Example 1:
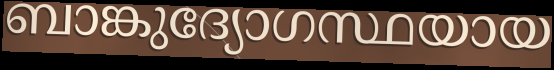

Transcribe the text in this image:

ബാങ്കുദ്യോഗസ്ഥയായ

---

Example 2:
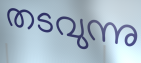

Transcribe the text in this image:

തടവുന്നു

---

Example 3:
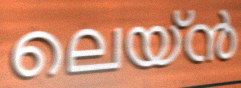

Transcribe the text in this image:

ലെയ്ൻ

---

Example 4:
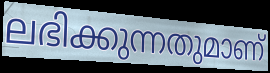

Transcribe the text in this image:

ലഭിക്കുന്നതുമാണ്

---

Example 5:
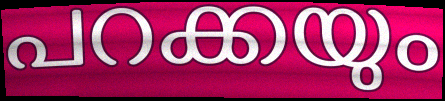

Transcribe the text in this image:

പറക്കയും